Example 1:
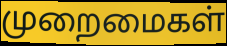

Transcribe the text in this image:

முறைமைகள்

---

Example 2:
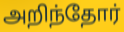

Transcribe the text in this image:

அறிந்தோர்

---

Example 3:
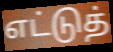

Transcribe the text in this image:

எட்டுத்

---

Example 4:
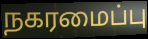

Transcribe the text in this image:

நகரமைப்பு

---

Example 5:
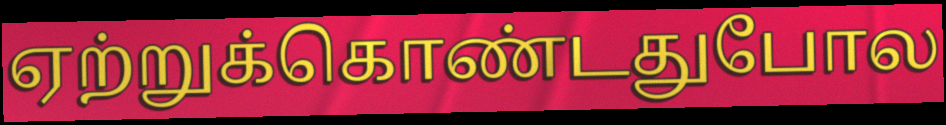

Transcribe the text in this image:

ஏற்றுக்கொண்டதுபோல